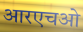
आरएचओ